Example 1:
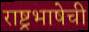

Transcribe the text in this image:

राष्ट्रभाषेची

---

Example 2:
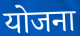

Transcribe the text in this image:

योजना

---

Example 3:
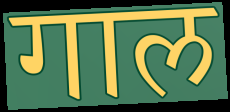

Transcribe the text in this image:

गाल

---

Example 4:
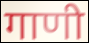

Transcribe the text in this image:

गाणी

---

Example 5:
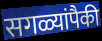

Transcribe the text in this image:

सगळ्यांपैकी